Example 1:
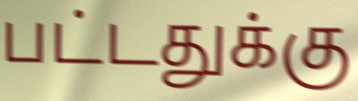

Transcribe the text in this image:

பட்டதுக்கு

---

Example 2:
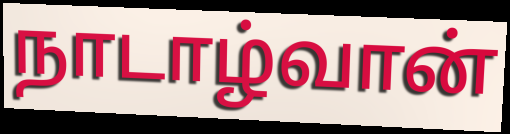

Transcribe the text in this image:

நாடாழ்வான்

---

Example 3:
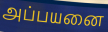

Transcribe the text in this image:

அப்பயனை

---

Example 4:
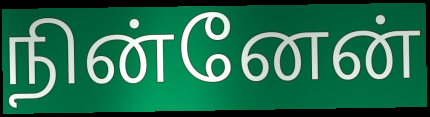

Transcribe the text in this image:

நின்னேன்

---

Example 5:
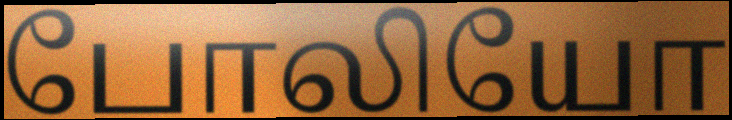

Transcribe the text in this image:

போலியோ